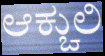
ಆಕ್ಚುಲಿ